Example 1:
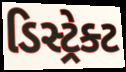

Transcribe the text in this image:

ડિસ્ટ્રેક્ટ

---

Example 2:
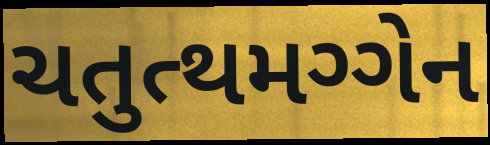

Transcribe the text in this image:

ચતુત્થમગ્ગેન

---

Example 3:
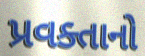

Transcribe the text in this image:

પ્રવક્તાનો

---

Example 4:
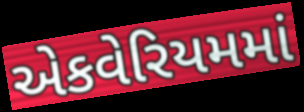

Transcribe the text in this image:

એકવેરિયમમાં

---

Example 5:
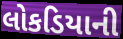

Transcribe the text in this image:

લોકડિયાની